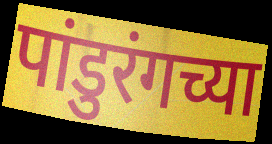
पांडुरंगच्या